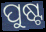
ପୁଷ୍ଟ